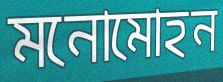
মনোমোহন